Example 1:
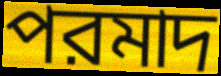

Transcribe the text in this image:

পরমাদ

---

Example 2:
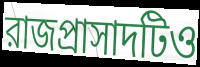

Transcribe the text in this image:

রাজপ্রাসাদটিও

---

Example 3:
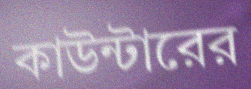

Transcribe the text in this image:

কাউন্টারের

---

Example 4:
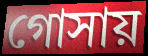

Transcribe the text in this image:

গোসায়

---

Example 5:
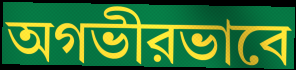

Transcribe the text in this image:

অগভীরভাবে